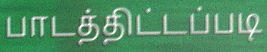
பாடத்திட்டப்படி